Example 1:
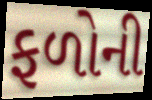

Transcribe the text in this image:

ફળોની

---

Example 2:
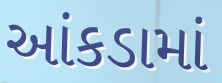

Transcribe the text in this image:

આંકડામાં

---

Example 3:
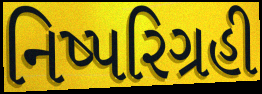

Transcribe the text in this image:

નિષ્પરિગ્રહી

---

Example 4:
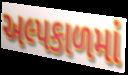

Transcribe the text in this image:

અલ્પકાળમાં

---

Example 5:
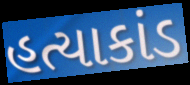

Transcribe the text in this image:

હત્યાકાંડ